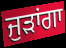
ਜੁੜਾਂਗਾ